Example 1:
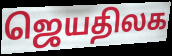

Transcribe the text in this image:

ஜெயதிலக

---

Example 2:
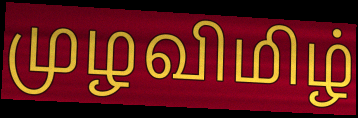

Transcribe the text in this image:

முழவிமிழ்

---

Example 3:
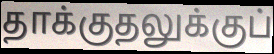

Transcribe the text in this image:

தாக்குதலுக்குப்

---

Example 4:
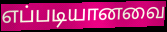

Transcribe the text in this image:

எப்படியானவை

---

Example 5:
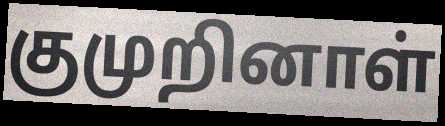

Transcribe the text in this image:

குமுறினாள்